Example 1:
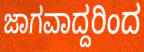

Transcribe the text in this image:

ಜಾಗವಾದ್ದರಿಂದ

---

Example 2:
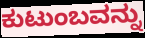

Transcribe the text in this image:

ಕುಟುಂಬವನ್ನು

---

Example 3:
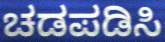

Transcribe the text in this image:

ಚಡಪಡಿಸಿ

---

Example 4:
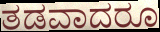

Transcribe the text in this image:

ತಡವಾದರೂ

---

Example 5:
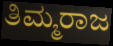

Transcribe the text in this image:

ತಿಮ್ಮರಾಜ